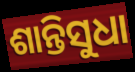
ଶାନ୍ତିସୁଧା